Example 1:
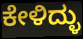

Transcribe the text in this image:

ಕೇಳಿದ್ಳು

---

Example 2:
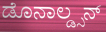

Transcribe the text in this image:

ಡೊನಾಲ್ಡ್ಸನ್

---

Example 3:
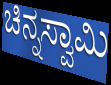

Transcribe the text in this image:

ಚಿನ್ನಸ್ವಾಮಿ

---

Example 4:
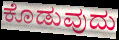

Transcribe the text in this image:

ಕೊಡುವುದು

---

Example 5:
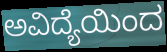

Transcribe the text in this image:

ಅವಿದ್ಯೆಯಿಂದ